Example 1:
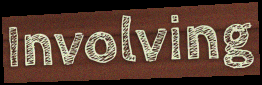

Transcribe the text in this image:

Involving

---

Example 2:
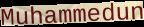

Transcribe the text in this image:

Muhammedun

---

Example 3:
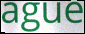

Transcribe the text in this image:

ague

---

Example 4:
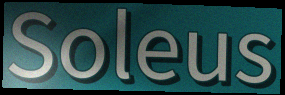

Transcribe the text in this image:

Soleus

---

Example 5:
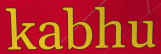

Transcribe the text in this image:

kabhu